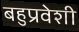
बहुप्रवेशी